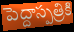
పెద్దాస్పత్రికి